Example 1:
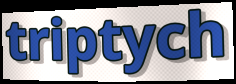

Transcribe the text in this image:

triptych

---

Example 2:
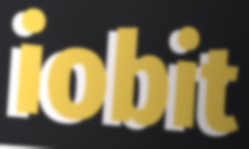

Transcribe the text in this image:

iobit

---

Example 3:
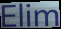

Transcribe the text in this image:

Elim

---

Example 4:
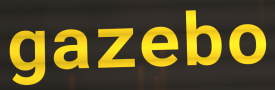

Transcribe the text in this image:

gazebo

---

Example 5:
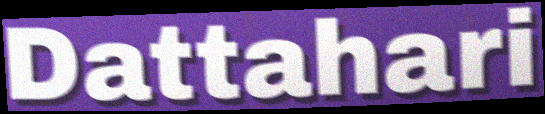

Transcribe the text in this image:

Dattahari